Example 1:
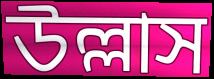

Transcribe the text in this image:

উল্লাস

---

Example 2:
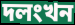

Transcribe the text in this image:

দলংখন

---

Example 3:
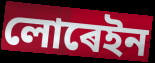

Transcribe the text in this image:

লোৰেইন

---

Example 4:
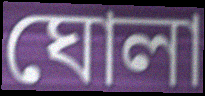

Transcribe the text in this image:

ঘোলা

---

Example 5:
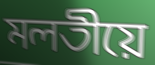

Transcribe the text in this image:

মলতীয়ে